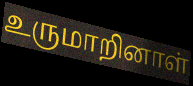
உருமாறினாள்